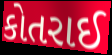
કોતરાઈ